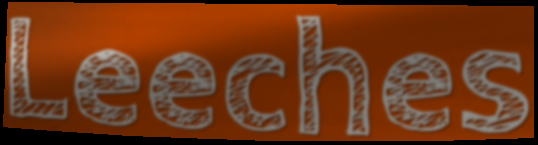
Leeches